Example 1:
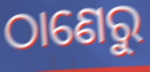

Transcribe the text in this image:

ଠାଣେରୁ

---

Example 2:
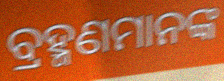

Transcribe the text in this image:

ବ୍ରହ୍ମଣମାନଙ୍କ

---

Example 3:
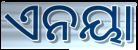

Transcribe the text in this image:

ଏନୟା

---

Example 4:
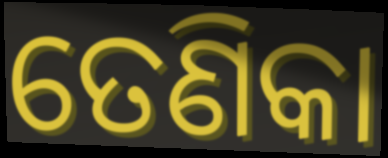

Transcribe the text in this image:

ତେଣିକା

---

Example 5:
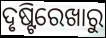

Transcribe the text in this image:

ଦୃଷ୍ଟିରେଖାରୁ